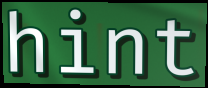
hint